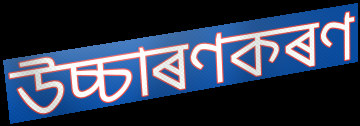
উচ্চাৰণকৰণ